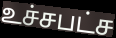
உச்சபட்ச